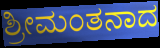
ಶ್ರೀಮಂತನಾದ